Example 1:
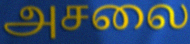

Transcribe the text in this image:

அசலை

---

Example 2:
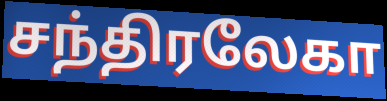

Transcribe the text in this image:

சந்திரலேகா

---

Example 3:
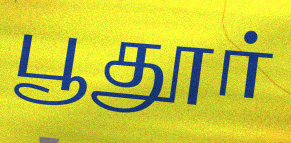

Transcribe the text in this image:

பூதூர்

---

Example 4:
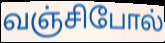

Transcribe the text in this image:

வஞ்சிபோல்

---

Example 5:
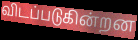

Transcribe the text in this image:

விடப்படுகின்றன